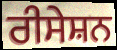
ਰੀਸੇਸ਼ਨ